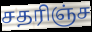
சதரிஞ்ச